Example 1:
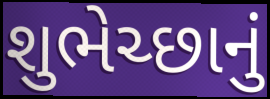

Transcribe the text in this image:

શુભેચ્છાનું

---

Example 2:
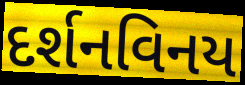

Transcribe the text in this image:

દર્શનવિનય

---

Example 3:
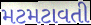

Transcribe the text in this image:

મટમટાવતી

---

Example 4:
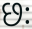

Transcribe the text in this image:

છઃ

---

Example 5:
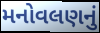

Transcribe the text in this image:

મનોવલણનું